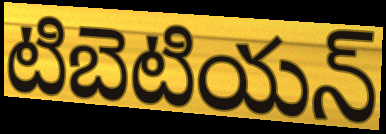
టిబెటియన్